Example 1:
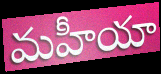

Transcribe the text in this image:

మహీయా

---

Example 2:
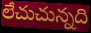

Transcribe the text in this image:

లేచుచున్నది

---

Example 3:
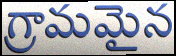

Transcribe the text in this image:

గ్రామమైన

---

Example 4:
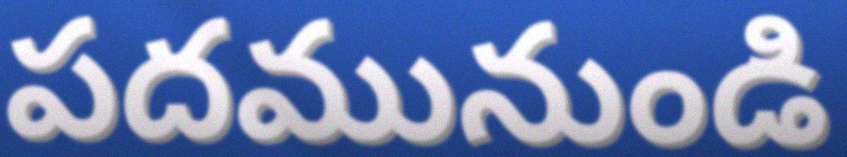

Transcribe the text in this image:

పదమునుండి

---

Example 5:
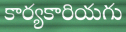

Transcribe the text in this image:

కార్యకారియగు